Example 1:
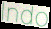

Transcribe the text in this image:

Indo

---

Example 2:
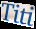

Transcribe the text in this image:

Titi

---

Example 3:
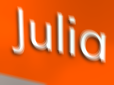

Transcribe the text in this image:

Julia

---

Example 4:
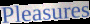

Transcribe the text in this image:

Pleasures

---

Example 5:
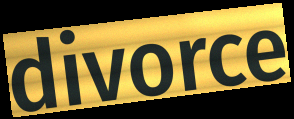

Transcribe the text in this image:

divorce